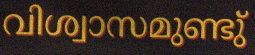
വിശ്വാസമുണ്ടു്